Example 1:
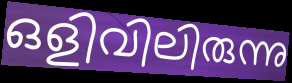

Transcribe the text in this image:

ഒളിവിലിരുന്നു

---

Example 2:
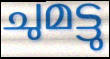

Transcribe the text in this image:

ചുമട്ടു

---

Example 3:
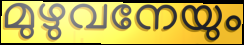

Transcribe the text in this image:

മുഴുവനേയും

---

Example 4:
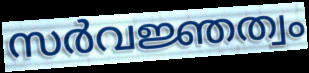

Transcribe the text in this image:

സർവജ്ഞത്വം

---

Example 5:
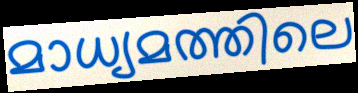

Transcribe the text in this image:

മാധ്യമത്തിലെ